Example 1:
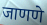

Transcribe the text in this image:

जाणणे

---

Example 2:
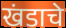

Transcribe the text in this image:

खंडाचे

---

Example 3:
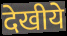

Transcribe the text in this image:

देखीये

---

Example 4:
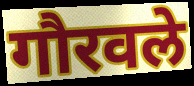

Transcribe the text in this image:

गौरवले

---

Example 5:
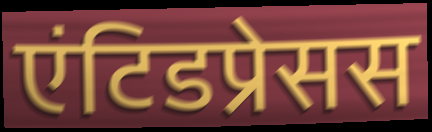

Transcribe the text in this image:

एंटिडप्रेसस